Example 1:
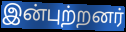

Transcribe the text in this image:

இன்புற்றனர்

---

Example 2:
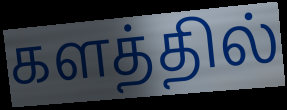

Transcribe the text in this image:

களத்தில்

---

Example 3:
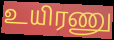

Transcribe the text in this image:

உயிரணு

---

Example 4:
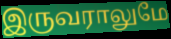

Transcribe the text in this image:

இருவராலுமே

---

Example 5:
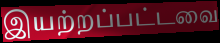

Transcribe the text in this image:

இயற்றப்பட்டவை